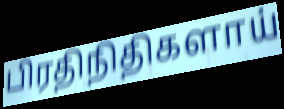
பிரதிநிதிகளாய்